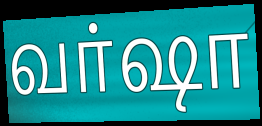
வர்ஷா